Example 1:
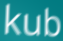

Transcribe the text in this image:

kub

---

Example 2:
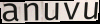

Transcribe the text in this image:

anuvu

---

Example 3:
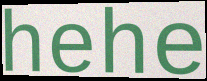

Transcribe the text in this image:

hehe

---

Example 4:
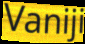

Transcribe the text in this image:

Vaniji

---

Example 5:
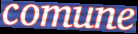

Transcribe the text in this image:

comune